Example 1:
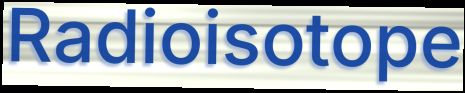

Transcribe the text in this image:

Radioisotope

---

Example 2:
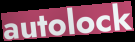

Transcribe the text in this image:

autolock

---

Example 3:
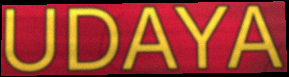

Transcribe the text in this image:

UDAYA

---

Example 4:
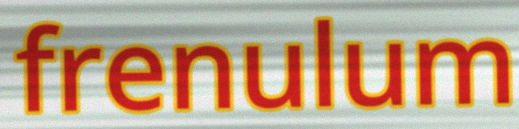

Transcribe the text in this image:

frenulum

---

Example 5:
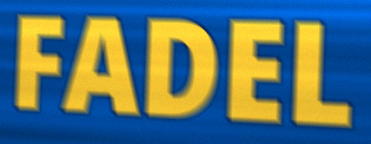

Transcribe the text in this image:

FADEL